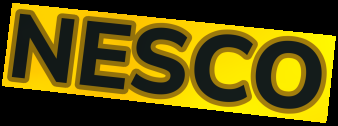
NESCO